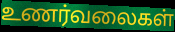
உணர்வலைகள்